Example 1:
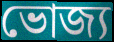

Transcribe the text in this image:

ভোজ্য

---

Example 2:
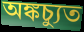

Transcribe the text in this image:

অঙ্কচ্যুত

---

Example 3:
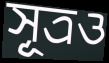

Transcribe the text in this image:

সূত্রও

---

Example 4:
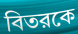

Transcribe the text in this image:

বিতরকে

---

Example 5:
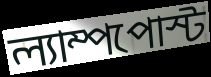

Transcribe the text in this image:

ল্যাম্পপোস্ট